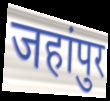
जहांपुर